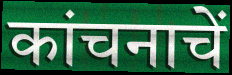
कांचनाचें